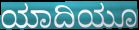
ಯಾದಿಯೂ